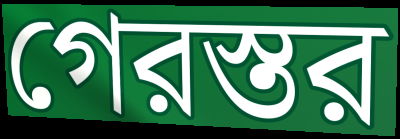
গেরস্তর